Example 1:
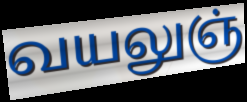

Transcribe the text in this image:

வயலுஞ்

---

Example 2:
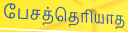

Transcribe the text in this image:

பேசத்தெரியாத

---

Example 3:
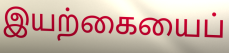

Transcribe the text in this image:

இயற்கையைப்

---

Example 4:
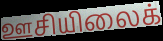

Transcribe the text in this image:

ஊசியிலைக்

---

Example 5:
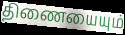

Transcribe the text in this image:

திணையையும்